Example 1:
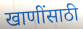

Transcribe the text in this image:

खाणींसाठी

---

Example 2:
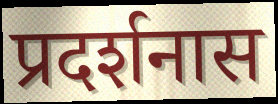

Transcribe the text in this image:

प्रदर्शनास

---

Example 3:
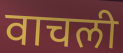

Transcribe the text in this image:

वाचली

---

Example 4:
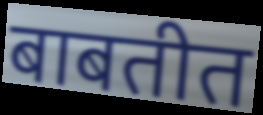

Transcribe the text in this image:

बाबतीत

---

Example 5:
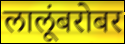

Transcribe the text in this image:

लालूंबरोबर